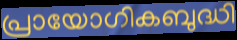
പ്രായോഗികബുദ്ധി